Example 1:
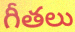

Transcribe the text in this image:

గీతలు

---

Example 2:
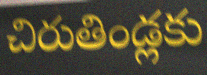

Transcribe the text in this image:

చిరుతిండ్లకు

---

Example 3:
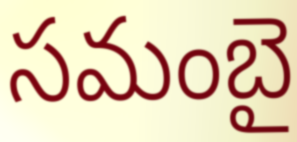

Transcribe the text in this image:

సమంబై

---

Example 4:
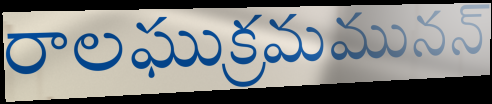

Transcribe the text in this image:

రాలఘుక్రమమునన్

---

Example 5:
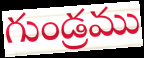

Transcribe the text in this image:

గుండ్రము